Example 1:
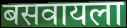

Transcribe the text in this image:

बसवायला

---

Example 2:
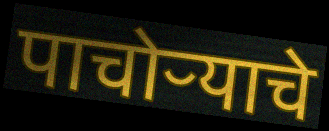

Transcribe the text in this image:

पाचोऱ्याचे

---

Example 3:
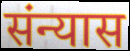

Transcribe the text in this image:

संन्यास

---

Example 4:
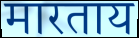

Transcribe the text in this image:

मारताय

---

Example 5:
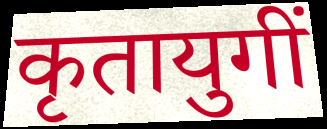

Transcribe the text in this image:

कृतायुगीं